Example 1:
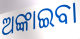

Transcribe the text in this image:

ଅଙ୍କାଇବା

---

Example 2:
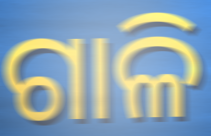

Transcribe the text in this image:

ଗାଳି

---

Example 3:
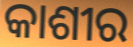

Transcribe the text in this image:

କାଶୀର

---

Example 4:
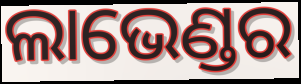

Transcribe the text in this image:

ଲାଭେଣ୍ଡର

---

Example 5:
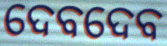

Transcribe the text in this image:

ଦେବଦେବ